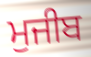
ਮੁਜੀਬ